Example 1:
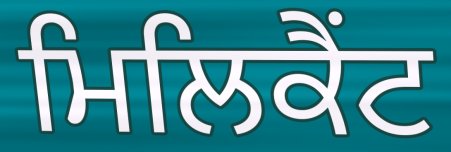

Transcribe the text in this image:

ਮਿਲਿਕੈਂਟ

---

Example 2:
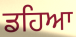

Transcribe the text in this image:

ਡਹਿਆ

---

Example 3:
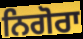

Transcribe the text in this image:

ਨਿਗੋਰਾ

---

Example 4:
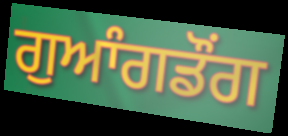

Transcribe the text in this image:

ਗੁਆੰਗਡੌਂਗ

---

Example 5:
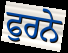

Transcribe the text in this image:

ਫੁਰਨੇ